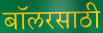
बॉलरसाठी